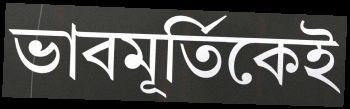
ভাবমূর্তিকেই